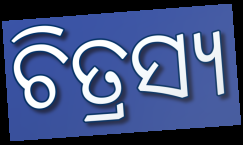
ଚିତ୍ରସ୍ୟ